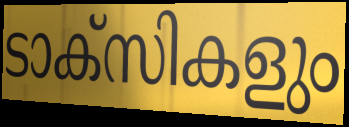
ടാക്സികളും